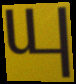
யு